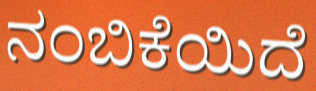
ನಂಬಿಕೆಯಿದೆ